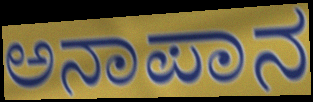
ಅನಾಪಾನ